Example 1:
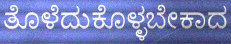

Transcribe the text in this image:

ತೊಳೆದುಕೊಳ್ಳಬೇಕಾದ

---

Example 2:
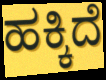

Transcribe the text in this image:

ಹಕ್ಕಿದೆ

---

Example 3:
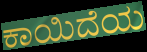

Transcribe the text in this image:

ಕಾಯಿದೆಯ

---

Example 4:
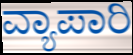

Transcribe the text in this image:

ವ್ಯಾಪಾರಿ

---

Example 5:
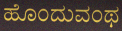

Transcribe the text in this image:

ಹೊಂದುವಂಥ